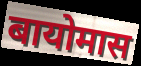
बायोमास